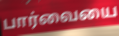
பார்வையை